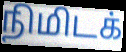
நிமிடக்